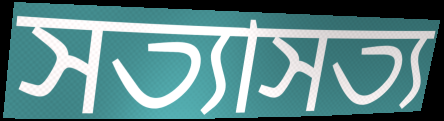
সত্যাসত্য